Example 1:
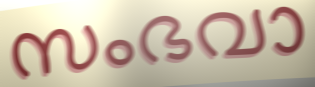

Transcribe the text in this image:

സംഭവാ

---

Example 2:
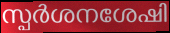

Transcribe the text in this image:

സ്പർശനശേഷി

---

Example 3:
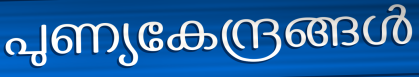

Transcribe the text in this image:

പുണ്യകേന്ദ്രങ്ങൾ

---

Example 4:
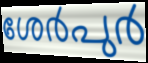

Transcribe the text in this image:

ശേർപുർ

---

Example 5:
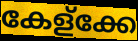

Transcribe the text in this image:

കേള്ക്കേ